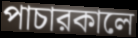
পাচারকালে